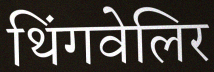
थिंगवेलिर